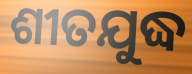
ଶୀତଯୁଦ୍ଧ